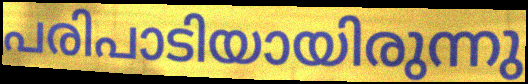
പരിപാടിയായിരുന്നു